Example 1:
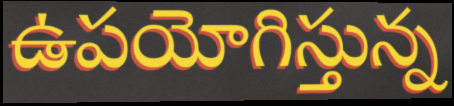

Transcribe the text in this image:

ఉపయోగిస్తున్న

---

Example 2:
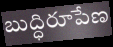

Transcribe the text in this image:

బుద్ధిరూపేణ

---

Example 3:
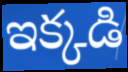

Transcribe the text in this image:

ఇక్కడి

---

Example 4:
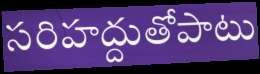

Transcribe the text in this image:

సరిహద్దుతోపాటు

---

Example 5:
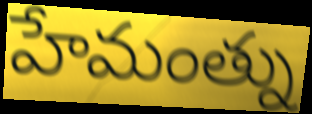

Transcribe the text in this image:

హేమంత్ను